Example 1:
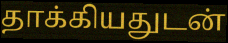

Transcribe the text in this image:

தாக்கியதுடன்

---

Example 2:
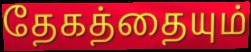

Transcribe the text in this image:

தேகத்தையும்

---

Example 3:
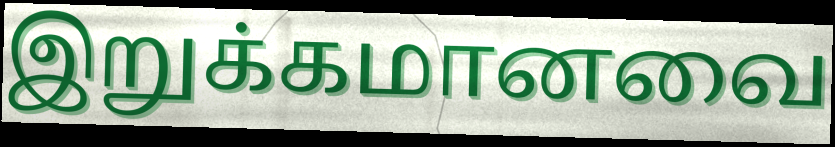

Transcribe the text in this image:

இறுக்கமானவை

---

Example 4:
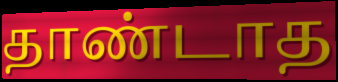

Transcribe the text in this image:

தாண்டாத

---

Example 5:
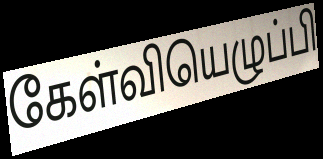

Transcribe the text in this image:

கேள்வியெழுப்பி